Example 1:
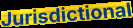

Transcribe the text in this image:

Jurisdictional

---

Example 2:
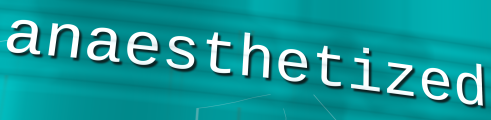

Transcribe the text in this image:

anaesthetized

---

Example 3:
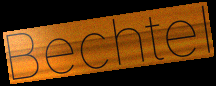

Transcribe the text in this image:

Bechtel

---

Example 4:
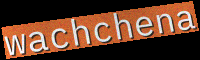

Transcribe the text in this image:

wachchena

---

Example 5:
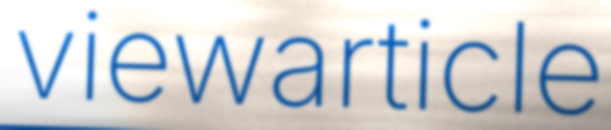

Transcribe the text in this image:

viewarticle